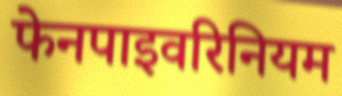
फेनपाइवरिनियम